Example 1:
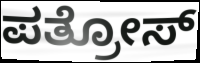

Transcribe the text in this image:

ಪತ್ರೋಸ್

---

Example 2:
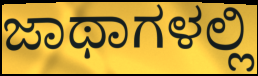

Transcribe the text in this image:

ಜಾಥಾಗಳಲ್ಲಿ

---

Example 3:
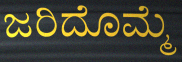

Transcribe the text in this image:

ಜರಿದೊಮ್ಮೆ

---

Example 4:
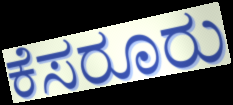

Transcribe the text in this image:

ಕೆಸರೂರು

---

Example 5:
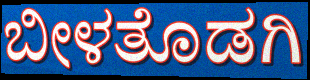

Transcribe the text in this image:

ಬೀಳತೊಡಗಿ